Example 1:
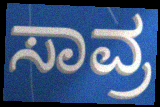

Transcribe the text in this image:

ಸಾವ್ರ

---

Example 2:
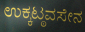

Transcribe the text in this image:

ಉಕ್ಕಟ್ಠವಸೇನ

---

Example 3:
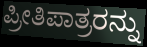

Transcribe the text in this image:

ಪ್ರೀತಿಪಾತ್ರರನ್ನು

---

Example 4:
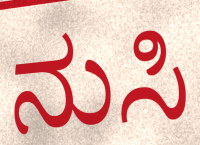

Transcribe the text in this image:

ನುಸಿ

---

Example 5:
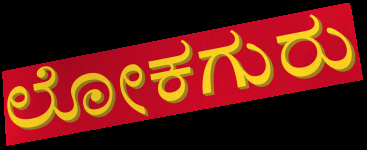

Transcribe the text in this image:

ಲೋಕಗುರು